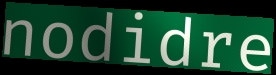
nodidre